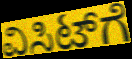
ವಿಸಿಟ್‌ಗೆ